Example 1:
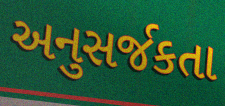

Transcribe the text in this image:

અનુસર્જકતા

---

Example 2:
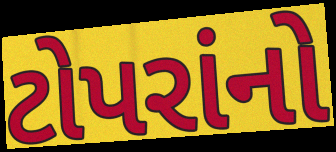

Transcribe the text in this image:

ટોપરાંનો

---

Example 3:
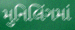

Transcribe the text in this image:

મુનિલિંગમાં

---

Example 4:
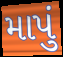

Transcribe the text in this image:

માપું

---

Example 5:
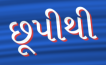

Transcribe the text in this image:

છૂપીથી